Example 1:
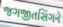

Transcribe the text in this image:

જગજીતસિંગને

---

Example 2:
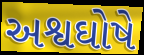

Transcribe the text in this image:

અશ્વઘોષે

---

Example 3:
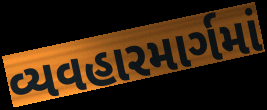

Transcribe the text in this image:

વ્યવહારમાર્ગમાં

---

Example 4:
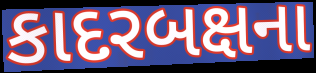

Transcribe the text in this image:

કાદરબક્ષના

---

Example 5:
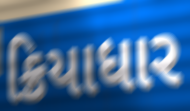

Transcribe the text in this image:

ક્રિયાધાર